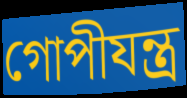
গোপীযন্ত্র